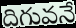
దిగువనే